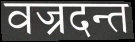
वज्रदन्त